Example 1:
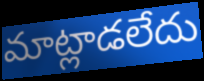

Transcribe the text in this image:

మాట్లాడలేదు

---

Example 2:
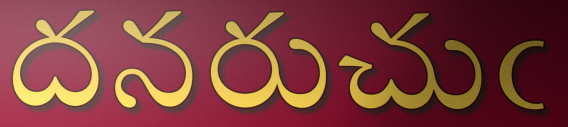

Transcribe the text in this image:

దనరుచుఁ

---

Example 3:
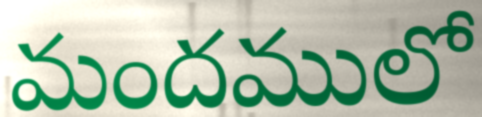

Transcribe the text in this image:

మందములో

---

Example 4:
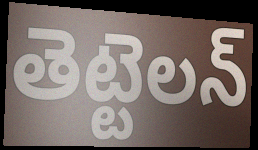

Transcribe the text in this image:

తెట్టెలన్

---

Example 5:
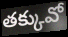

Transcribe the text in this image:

తక్కువో